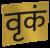
वृकं